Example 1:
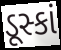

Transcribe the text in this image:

ડૂસ્કાં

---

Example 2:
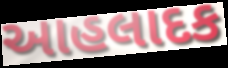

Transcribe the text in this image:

આહલાદક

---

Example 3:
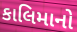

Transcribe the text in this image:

કાલિમાનો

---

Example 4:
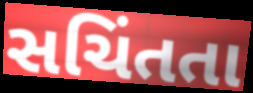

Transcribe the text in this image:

સચિંતતા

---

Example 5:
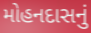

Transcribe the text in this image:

મોહનદાસનું